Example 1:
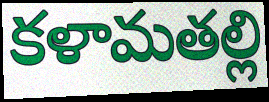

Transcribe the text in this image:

కళామతల్లి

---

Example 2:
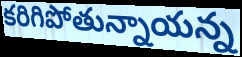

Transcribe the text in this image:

కరిగిపోతున్నాయన్న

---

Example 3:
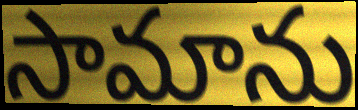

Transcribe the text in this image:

సామాను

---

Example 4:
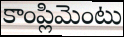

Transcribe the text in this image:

కాంప్లిమెంటు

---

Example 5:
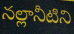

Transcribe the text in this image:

నల్లానీటిని